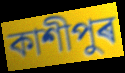
কাশীপুৰ